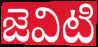
జెవిటి